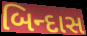
બિન્દાસ